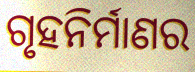
ଗୃହନିର୍ମାଣର